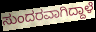
ಸುಂದರವಾಗಿದ್ದಾಳೆ